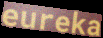
eureka